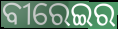
ବୀରେଇର